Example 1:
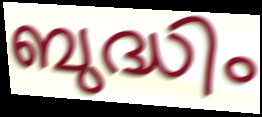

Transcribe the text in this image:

ബുദ്ധിം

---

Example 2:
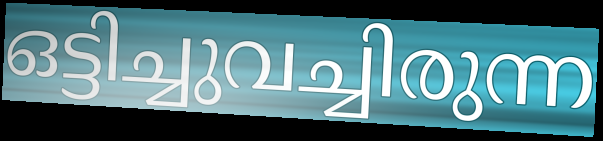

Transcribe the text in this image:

ഒട്ടിച്ചുവച്ചിരുന്ന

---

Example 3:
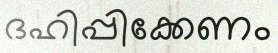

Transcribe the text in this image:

ദഹിപ്പിക്കേണം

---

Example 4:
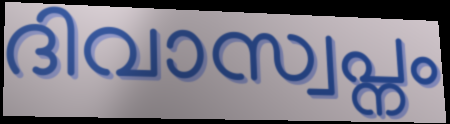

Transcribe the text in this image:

ദിവാസ്വപ്നം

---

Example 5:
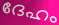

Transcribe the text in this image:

ദേഹം